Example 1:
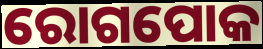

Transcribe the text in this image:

ରୋଗପୋକ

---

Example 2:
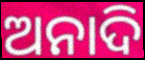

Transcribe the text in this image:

ଅନାଦି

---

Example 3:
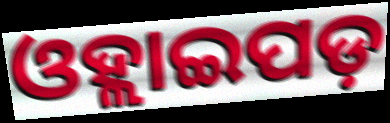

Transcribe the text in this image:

ଓହ୍ଲାଇପଡ଼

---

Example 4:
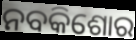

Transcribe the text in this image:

ନବକିଶୋର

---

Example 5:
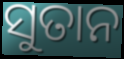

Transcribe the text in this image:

ସୁତାନ